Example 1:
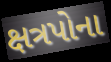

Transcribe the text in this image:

ક્ષત્રપોના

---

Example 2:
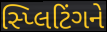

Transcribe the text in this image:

સ્પ્લિટિંગને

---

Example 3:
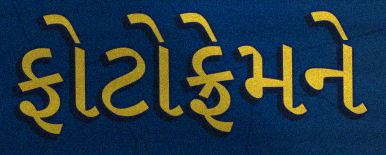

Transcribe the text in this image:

ફોટોફ્રેમને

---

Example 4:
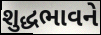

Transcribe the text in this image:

શુદ્ધભાવને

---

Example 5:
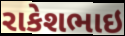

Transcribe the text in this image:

રાકેશભાઇ